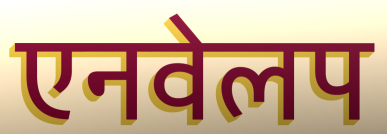
एनवेलप